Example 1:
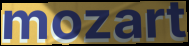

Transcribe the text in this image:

mozart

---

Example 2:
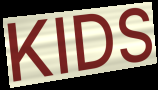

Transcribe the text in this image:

KIDS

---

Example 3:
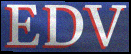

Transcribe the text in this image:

EDV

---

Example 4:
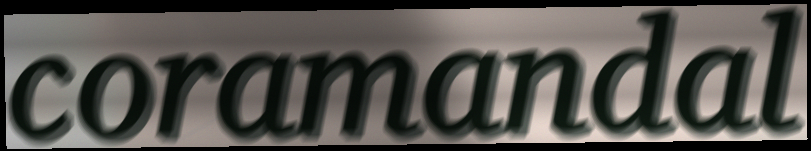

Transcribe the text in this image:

coramandal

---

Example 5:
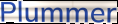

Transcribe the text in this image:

Plummer